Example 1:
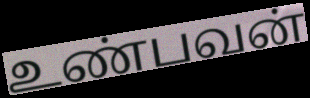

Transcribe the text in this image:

உண்பவன்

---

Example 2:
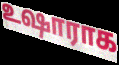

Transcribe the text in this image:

உஷாராக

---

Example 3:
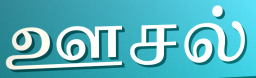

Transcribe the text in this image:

ஊசல்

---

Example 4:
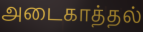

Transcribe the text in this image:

அடைகாத்தல்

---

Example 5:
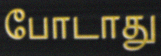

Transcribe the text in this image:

போடாது